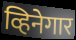
व्हिनेगार